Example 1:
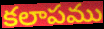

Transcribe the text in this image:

కలాపము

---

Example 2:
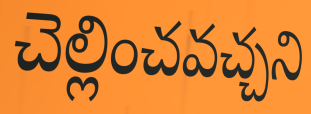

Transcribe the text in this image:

చెల్లించవచ్చని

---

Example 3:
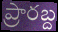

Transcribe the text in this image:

ప్రారబ్ద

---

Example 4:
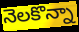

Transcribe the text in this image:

నెలకొన్నా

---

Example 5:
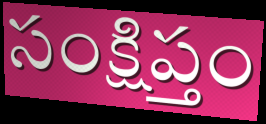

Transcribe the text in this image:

సంక్షిప్తం